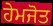
ਹੇਮਜੋਤ